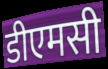
डीएमसी